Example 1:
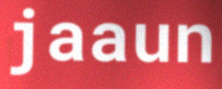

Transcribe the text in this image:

jaaun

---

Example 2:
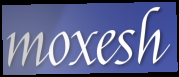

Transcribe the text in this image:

moxesh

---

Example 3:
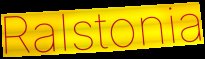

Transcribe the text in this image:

Ralstonia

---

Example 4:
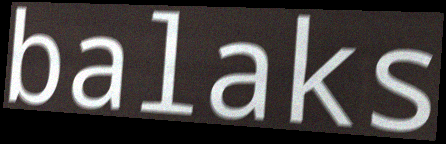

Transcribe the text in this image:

balaks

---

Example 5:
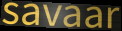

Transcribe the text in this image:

savaar